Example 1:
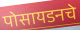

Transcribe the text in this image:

पोसायडनचे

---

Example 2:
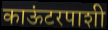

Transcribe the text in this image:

काऊंटरपाशी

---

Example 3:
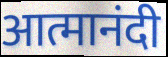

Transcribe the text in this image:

आत्मानंदी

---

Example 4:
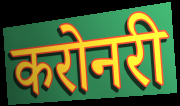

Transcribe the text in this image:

करोनरी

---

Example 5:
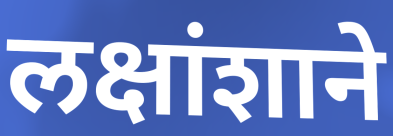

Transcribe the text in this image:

लक्षांशाने